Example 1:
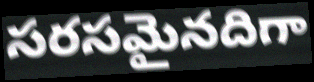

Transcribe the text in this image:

సరసమైనదిగా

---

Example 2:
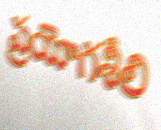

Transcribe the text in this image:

ప్రయోగశీలి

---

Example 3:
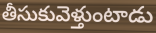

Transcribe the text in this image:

తీసుకువెళ్తుంటాడు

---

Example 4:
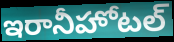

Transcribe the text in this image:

ఇరానీహోటల్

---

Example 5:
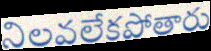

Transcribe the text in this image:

నిలవలేకపోతారు